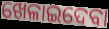
ଖେଳାଇଦେବା